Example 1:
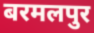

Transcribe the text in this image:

बरमलपुर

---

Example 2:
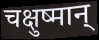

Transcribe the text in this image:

चक्षुष्मान्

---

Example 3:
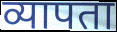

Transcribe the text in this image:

व्यापता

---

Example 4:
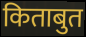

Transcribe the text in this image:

किताबुत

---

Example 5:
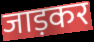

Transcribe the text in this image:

जाड़कर